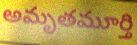
అమృతమూర్తి